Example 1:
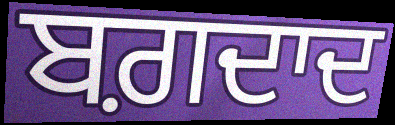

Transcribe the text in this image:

ਬ਼ਗਦਾਦ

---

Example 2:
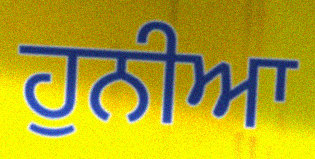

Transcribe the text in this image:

ਹੁਨੀਆ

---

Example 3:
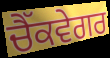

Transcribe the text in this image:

ਚੈੱਕਵੇਗਰ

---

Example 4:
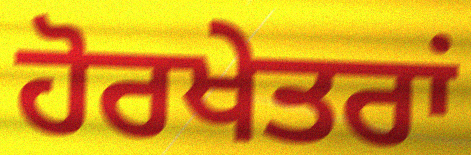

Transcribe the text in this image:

ਹੋਰਖੇਤਰਾਂ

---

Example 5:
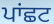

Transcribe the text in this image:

ਪਾਂਛਟ